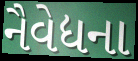
નૈવેદ્યના